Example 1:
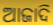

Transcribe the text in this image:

ଆଜାଦି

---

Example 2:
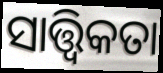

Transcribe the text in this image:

ସାତ୍ତ୍ଵିକତା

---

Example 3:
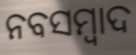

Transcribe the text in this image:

ନବସମ୍ବାଦ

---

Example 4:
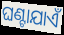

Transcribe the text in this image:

ଘଣ୍ଟାଯାଏଁ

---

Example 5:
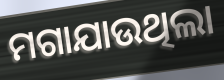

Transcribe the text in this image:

ମଗାଯାଉଥିଲା